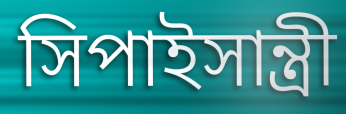
সিপাইসান্ত্রী